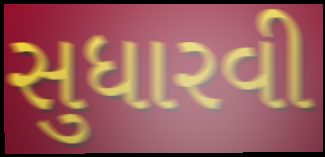
સુધારવી